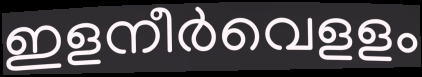
ഇളനീർവെളളം